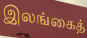
இலங்கைத்